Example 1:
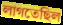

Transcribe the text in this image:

লাগতেছিল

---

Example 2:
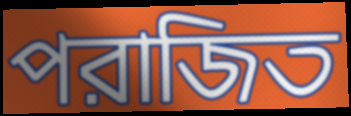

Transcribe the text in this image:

পরাজিত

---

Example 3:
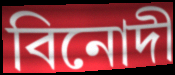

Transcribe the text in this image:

বিনোদী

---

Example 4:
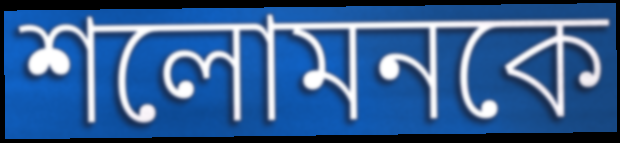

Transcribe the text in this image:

শলোমনকে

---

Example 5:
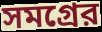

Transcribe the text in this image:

সমগ্রের